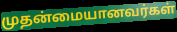
முதன்மையானவர்கள்